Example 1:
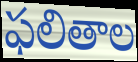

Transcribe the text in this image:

ఫలితాల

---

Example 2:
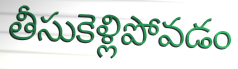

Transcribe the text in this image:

తీసుకెళ్లిపోవడం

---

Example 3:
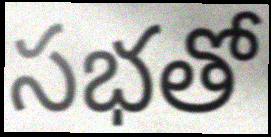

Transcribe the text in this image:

సభతో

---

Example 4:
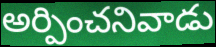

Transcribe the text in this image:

అర్పించనివాడు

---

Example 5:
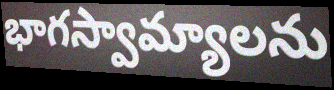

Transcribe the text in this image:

భాగస్వామ్యాలను